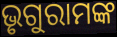
ଭୃଗୁରାମଙ୍କ